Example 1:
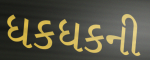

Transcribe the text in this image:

ધકધકની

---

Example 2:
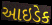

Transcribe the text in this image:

આઇડેક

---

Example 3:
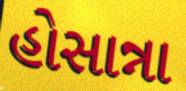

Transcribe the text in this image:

હોસાન્ના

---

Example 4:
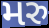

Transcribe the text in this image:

મરુ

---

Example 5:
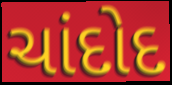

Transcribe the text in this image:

ચાંદોદ